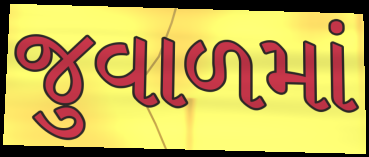
જુવાળમાં